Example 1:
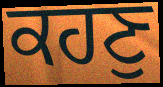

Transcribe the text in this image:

ਕਹਣੁ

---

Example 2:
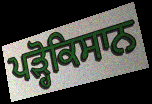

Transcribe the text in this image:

ਪੜ੍ਹੋਕਿਸਾਨ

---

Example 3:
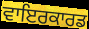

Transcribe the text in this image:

ਵਾਇਰਕਾਰਡ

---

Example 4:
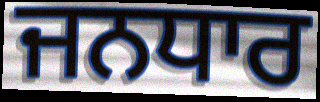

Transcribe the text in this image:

ਜਨਧਾਰ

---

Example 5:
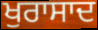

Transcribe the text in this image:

ਖੁਰਾਸਾਦ